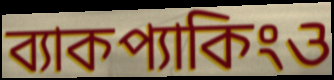
ব্যাকপ্যাকিংও